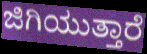
ಜಿಗಿಯುತ್ತಾರೆ